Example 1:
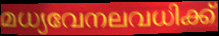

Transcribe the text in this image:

മധ്യവേനലവധിക്ക്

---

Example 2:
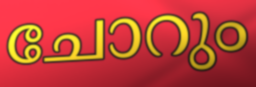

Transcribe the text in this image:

ചോറും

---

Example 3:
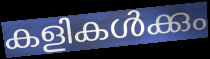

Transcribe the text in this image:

കളികൾക്കും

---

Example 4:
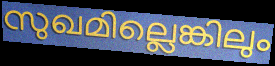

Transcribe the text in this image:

സുഖമില്ലെങ്കിലും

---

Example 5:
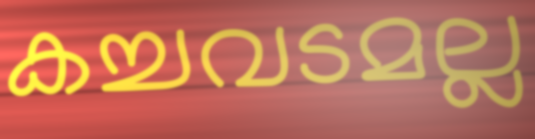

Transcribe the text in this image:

കച്ചവടമല്ല